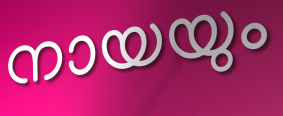
നായയും